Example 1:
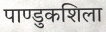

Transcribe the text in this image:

पाण्डुकशिला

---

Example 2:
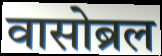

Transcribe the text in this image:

वासोब्रल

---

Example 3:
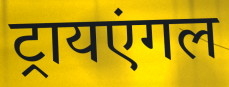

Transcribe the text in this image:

ट्रायएंगल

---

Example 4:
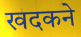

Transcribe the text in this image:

खदकने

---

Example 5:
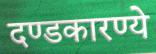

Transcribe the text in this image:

दण्डकारण्ये